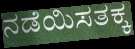
ನಡೆಯಿಸತಕ್ಕ